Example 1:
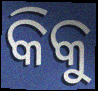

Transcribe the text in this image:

କିକୁ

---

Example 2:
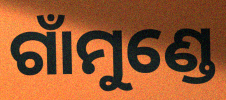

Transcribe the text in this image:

ଗାଁମୁଣ୍ଡେ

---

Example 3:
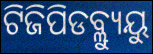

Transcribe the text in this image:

ଟିଜିପିଡବ୍ଲ୍ୟୁୟୁ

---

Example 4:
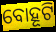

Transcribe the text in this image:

ବୋହୂଟି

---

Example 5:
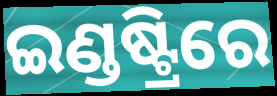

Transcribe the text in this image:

ଇଣ୍ଡଷ୍ଟ୍ରିରେ